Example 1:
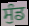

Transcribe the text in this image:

ਸੁੰਡ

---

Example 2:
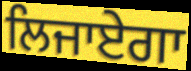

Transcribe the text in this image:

ਲਿਜਾਏਗਾ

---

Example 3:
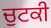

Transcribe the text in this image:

ਚੁਟਕੀ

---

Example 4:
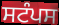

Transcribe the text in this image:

ਸਟੰਪਸ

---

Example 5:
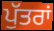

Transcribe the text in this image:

ਪੁੱਤਰਾਂ